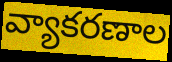
వ్యాకరణాల